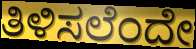
ತಿಳಿಸಲೆಂದೇ